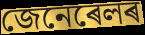
জেনেৰেলৰ